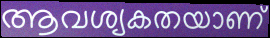
ആവശ്യകതയാണ്